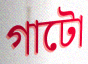
গাটো